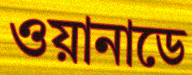
ওয়ানাডে